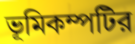
ভূমিকম্পটির